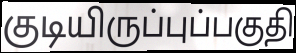
குடியிருப்புப்பகுதி